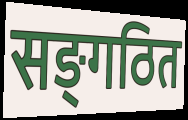
सङ्गठित